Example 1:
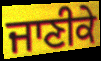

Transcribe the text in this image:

ਜਾਣੀਕੇ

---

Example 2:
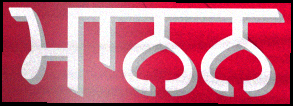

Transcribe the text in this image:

ਮਾਨਨ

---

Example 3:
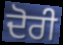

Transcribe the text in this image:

ਦੋਰੀ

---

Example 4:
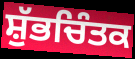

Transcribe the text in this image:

ਸ਼ੁੱਭਚਿੰਤਕ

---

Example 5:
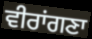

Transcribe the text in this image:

ਵੀਰਾਂਗਣਾ